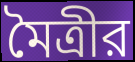
মৈত্রীর